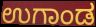
ಉಗಾಂಡ